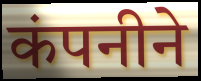
कंपनीने